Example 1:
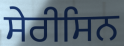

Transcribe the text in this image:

ਸੇਰੀਸਿਨ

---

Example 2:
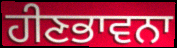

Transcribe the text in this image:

ਹੀਣਭਾਵਨਾ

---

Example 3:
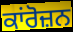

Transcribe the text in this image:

ਕਾਂਰੋਜ਼ਨ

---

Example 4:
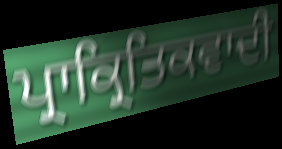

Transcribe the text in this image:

ਪ੍ਰਾਕ੍ਰਿਤਿਕਵਾਦੀ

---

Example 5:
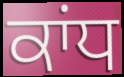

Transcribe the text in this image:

ਕਾਂਧ